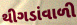
થીગડાંવાળી